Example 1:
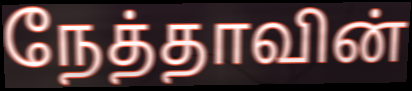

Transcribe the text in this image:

நேத்தாவின்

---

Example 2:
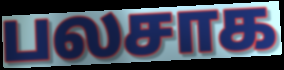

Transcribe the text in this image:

பலசாக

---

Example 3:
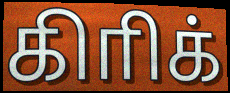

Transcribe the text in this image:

கிரிக்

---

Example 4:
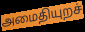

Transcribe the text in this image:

அமைதியுறச்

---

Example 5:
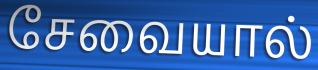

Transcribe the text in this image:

சேவையால்